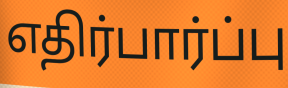
எதிர்பார்ப்பு